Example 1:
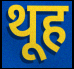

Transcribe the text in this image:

थूह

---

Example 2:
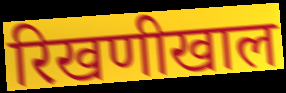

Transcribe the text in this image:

रिखणीखाल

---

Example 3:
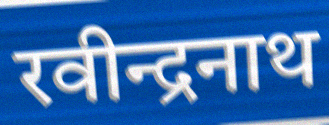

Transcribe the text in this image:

रवीन्‍द्रनाथ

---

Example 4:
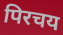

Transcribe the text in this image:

पिरचय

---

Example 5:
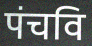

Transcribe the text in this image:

पंचवि